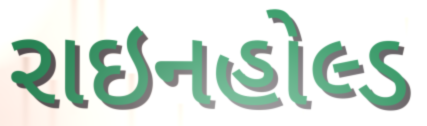
રાઇનહોલ્ડ